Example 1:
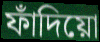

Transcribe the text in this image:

ফাঁদিয়ো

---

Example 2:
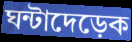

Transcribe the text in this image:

ঘন্টাদেড়েক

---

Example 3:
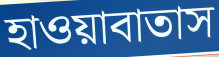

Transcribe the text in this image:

হাওয়াবাতাস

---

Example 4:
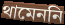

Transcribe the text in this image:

থামেননি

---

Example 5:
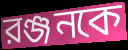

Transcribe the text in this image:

রঞ্জনকে